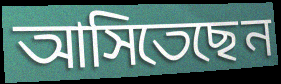
আসিতেছেন